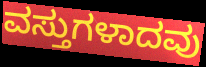
ವಸ್ತುಗಳಾದವು